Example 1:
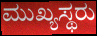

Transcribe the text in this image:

ಮುಖ್ಯಸ್ಥರು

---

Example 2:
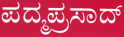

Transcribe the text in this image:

ಪದ್ಮಪ್ರಸಾದ್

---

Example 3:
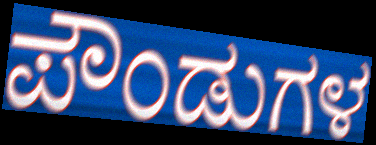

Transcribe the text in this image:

ಪೌಂಡುಗಳ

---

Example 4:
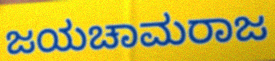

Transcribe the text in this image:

ಜಯಚಾಮರಾಜ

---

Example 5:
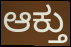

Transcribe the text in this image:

ಆಕ್ತು